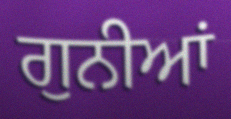
ਗੁਨੀਆਂ